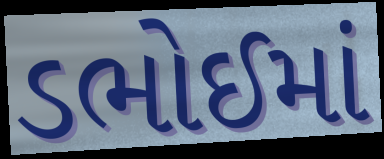
ડભોઈમાં